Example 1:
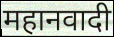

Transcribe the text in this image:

महानवादी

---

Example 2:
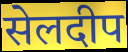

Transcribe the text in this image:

सेलदीप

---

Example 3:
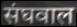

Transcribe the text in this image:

संघवाल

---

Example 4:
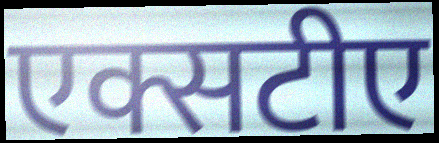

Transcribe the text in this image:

एक्सटीए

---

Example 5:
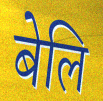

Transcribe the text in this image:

बेलि